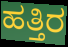
ಹತ್ತಿರ